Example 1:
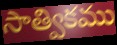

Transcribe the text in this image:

సాత్వికము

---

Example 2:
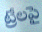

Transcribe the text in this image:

ట్రేలపై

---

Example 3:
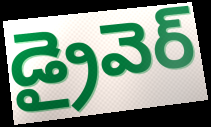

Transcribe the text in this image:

డ్రైవెర్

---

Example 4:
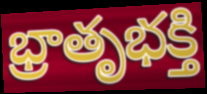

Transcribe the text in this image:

భ్రాతృభక్తి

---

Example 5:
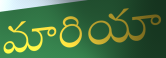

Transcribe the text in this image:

మారియా